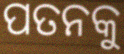
ପତନକୁ